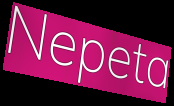
Nepeta